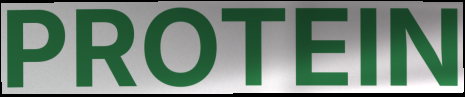
PROTEIN